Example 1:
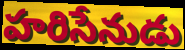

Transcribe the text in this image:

హరిసేనుడు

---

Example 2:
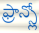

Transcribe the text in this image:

ఫ్రాన్స్లో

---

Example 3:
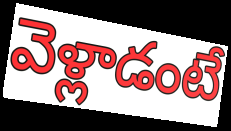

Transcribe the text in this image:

వెళ్లాడంటే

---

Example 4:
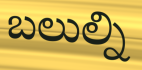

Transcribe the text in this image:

బలుల్ని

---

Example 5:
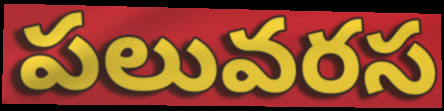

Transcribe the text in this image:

పలువరస